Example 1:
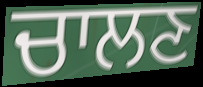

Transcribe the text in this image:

ਚਾਲਣ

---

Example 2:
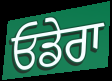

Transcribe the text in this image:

ਓਡੇਰਾ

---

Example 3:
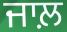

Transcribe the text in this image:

ਜਾਲ਼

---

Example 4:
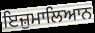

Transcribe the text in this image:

ਇਜ਼ੁਮਾਲਿਆਨ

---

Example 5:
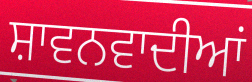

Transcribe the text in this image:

ਸ਼ਾਵਨਵਾਦੀਆਂ